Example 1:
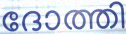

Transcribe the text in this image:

ദോത്തി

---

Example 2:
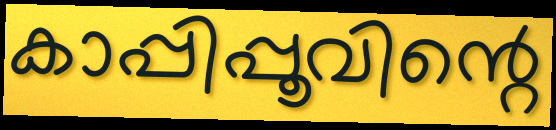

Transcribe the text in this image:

കാപ്പിപ്പൂവിന്റെ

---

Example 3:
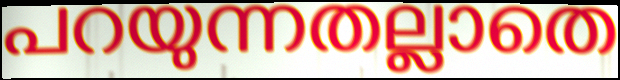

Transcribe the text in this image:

പറയുന്നതല്ലാതെ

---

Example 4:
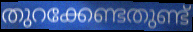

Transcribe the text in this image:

തുറക്കേണ്ടതുണ്ട്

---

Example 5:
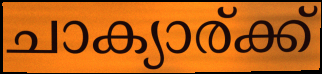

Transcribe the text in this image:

ചാക്യാര്ക്ക്